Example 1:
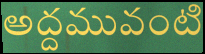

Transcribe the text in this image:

అద్దమువంటి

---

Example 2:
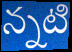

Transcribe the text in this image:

న్నటి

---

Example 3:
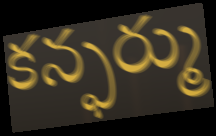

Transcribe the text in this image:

కన్ఫర్ము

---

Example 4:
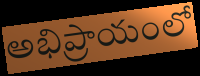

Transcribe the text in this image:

అభిప్రాయంలో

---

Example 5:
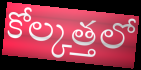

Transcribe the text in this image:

కోల్కత్తలో